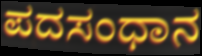
ಪದಸಂಧಾನ